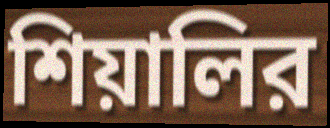
শিয়ালির